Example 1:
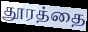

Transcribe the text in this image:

தூரத்தை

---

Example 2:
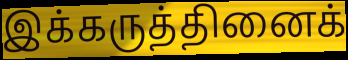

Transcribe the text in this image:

இக்கருத்தினைக்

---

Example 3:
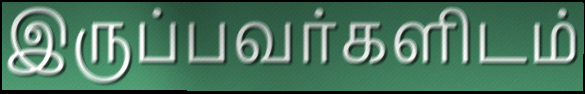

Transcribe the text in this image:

இருப்பவர்களிடம்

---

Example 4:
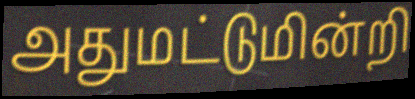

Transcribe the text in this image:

அதுமட்டுமின்றி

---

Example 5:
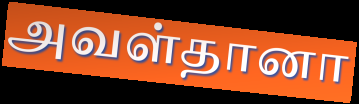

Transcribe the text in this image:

அவள்தானா